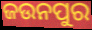
ଜଉନପୁର